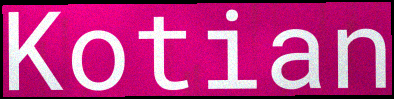
Kotian